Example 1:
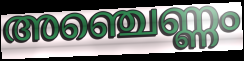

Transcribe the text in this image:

അഞ്ചെണ്ണം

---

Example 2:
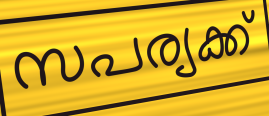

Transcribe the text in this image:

സപര്യക്ക്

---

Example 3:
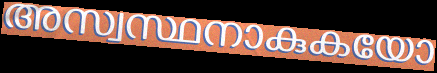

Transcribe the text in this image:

അസ്വസ്ഥനാകുകയോ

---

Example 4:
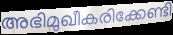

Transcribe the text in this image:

അഭിമുഖീകരിക്കേണ്ടി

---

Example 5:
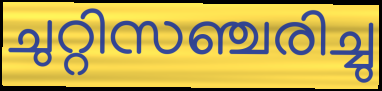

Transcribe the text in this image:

ചുറ്റിസഞ്ചരിച്ചു